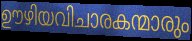
ഊഴിയവിചാരകന്മാരും